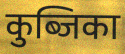
कुब्जिका